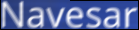
Navesar